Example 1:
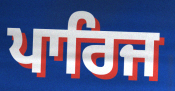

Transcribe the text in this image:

ਪਾਰਿਜ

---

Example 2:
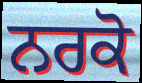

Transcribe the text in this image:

ਨਰਕੋ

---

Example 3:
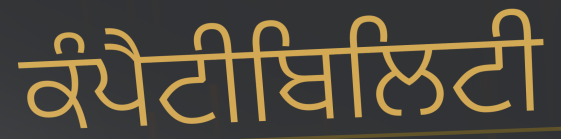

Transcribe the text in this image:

ਕੰਪੈਟੀਬਿਲਿਟੀ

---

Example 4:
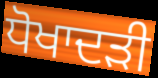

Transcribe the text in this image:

ਧੋਖਾਦੜੀ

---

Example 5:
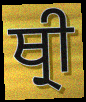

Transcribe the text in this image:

ਥ੍ਰੀ